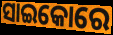
ସାଇକୋରେ